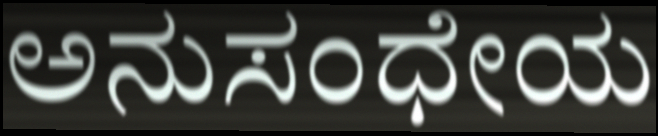
ಅನುಸಂಧೇಯ